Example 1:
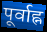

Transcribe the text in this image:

पूर्वाह्न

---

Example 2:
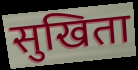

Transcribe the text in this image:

सुखिता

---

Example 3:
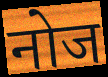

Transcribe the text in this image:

नोज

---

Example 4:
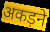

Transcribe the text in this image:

अकड़ने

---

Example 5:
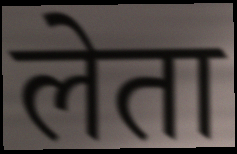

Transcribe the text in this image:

लेता